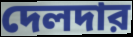
দেলদার